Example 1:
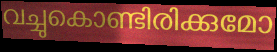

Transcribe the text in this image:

വച്ചുകൊണ്ടിരിക്കുമോ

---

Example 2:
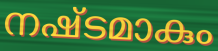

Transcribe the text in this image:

നഷ്‌ടമാകും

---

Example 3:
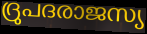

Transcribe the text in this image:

ദ്രുപദരാജസ്യ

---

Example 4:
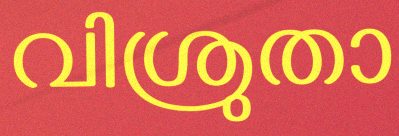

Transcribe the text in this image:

വിശ്രുതാ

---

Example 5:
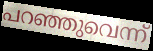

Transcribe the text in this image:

പറഞ്ഞുവെന്ന്